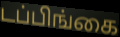
டப்பிங்கை